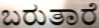
ಬರುತಾರೆ